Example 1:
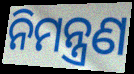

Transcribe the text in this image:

ନିମନ୍ତ୍ରଣ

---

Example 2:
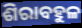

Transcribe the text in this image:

ଶିରାବହୁଳ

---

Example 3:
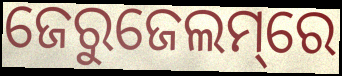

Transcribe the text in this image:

ଜେରୁଜେଲମ୍‌ରେ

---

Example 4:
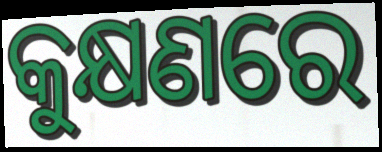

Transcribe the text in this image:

କୁକ୍ଷଣରେ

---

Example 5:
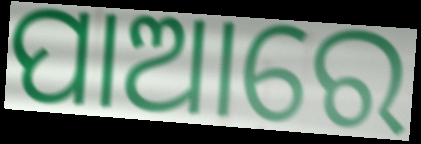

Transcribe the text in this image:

ପାଆରେ